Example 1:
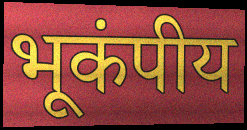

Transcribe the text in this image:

भूकंपीय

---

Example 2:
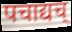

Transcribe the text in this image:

पचाद्यच्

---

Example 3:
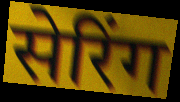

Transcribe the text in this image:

सेरिंग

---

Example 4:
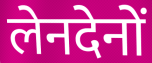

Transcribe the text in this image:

लेनदेनों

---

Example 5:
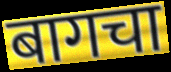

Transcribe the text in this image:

बागचा